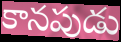
కానపుడు